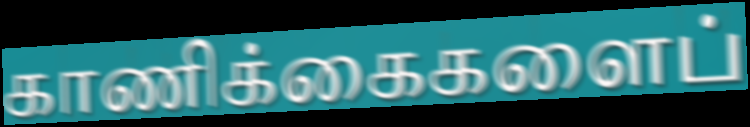
காணிக்கைகளைப்